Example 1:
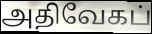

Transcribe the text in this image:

அதிவேகப்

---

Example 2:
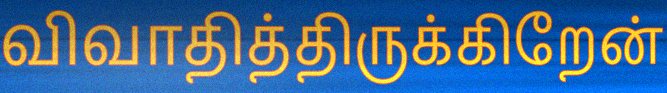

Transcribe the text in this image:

விவாதித்திருக்கிறேன்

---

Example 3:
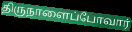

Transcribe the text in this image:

திருநாளைப்போவார்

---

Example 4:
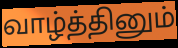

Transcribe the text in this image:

வாழ்த்தினும்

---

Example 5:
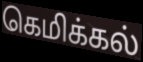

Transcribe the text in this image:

கெமிக்கல்